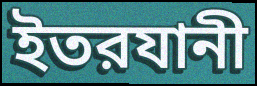
ইতরযানী